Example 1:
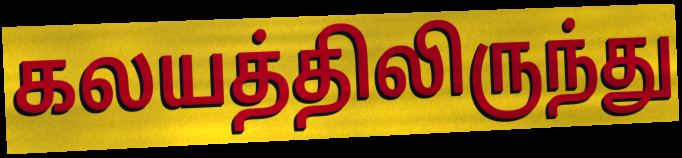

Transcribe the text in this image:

கலயத்திலிருந்து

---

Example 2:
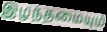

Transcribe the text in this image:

இழந்தமையும்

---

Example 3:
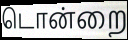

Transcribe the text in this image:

டொன்றை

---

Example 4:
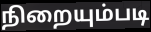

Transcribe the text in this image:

நிறையும்படி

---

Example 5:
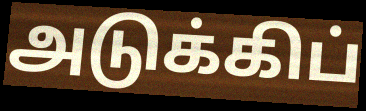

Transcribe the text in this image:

அடுக்கிப்